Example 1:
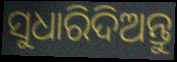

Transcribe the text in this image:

ସୁଧାରିଦିଅନ୍ତୁ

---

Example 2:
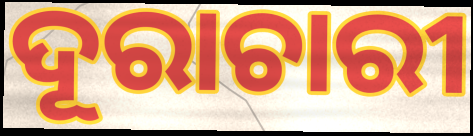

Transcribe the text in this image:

ଦୂରାଚାରୀ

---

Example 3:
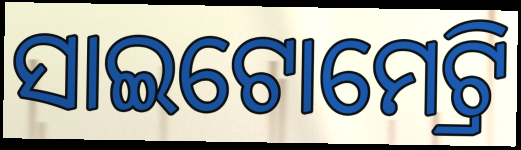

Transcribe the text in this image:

ସାଇଟୋମେଟ୍ରି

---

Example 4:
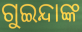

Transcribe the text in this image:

ଗୁଇନ୍ଦାଙ୍କ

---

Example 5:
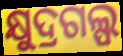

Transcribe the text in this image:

କ୍ଷୁଦ୍ରଗଲ୍ପ